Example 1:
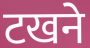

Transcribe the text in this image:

टखने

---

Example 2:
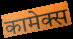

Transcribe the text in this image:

कामेक्स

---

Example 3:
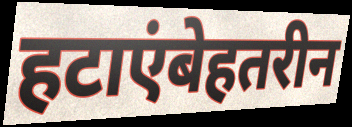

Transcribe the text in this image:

हटाएंबेहतरीन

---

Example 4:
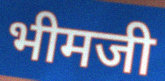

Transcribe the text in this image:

भीमजी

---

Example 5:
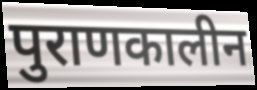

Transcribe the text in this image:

पुराणकालीन